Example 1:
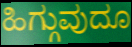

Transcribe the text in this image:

ಹಿಗ್ಗುವುದೂ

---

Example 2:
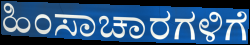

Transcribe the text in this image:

ಹಿಂಸಾಚಾರಗಳಿಗೆ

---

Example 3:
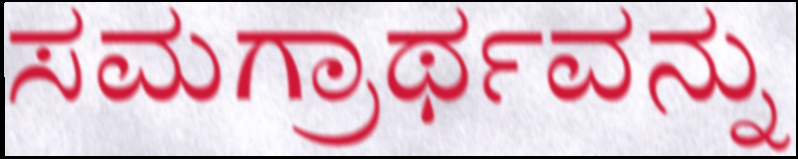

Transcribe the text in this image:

ಸಮಗ್ರಾರ್ಥವನ್ನು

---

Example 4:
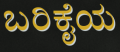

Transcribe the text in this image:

ಬರಿಕೈಯ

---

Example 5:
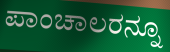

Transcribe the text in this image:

ಪಾಂಚಾಲರನ್ನೂ